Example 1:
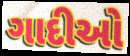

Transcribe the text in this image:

ગાદીઓ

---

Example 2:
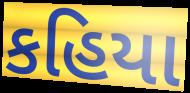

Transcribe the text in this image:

કહિયા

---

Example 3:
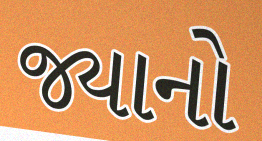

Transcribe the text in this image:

જ્યાનો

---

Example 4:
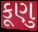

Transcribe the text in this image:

કૂણુ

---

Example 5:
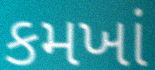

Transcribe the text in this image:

કમખાં